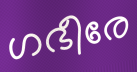
ഗഭീരേ